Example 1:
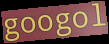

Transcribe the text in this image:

googol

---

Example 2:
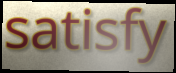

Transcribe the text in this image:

satisfy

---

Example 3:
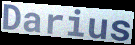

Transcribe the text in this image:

Darius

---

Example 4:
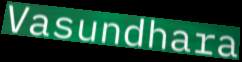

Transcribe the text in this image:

Vasundhara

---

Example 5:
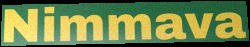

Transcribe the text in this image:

Nimmava